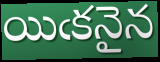
యిఁకనైన